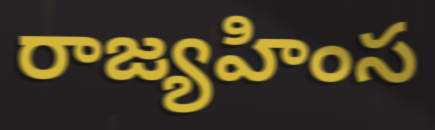
రాజ్యహింస